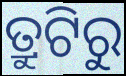
ତ୍ରୁଟିରୁ